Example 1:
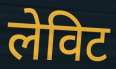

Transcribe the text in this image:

लेविट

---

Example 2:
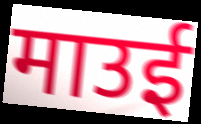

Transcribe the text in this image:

माउई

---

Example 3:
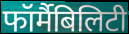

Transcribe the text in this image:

फॉर्मैबिलिटी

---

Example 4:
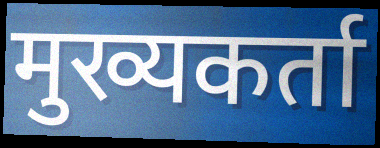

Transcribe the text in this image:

मुख्यकर्ता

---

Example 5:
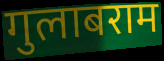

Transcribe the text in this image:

गुलाबराम